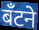
बँटने